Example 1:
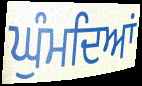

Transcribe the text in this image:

ਘੁੰਮਦਿਆਂ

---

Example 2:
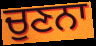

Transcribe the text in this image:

ਚੁਣਨਾ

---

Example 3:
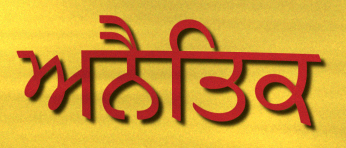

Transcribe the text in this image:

ਅਨੈਤਿਕ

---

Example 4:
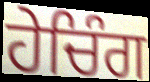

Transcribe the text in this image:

ਹੇਚਿੰਗ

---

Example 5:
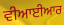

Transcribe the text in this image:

ਵੀਆਈਆਰ